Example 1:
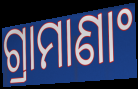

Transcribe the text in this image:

ଗ୍ରାମାଣାଂ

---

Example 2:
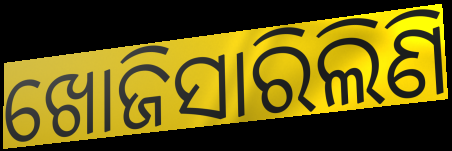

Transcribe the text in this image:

ଖୋଜିସାରିଲିଣି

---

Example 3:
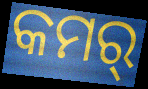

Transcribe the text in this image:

କମର୍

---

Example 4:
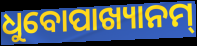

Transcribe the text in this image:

ଧୁବୋପାଖ୍ୟାନମ୍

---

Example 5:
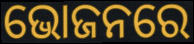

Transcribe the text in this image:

ଭୋଜନରେ